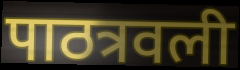
पाठत्रवली